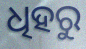
ଧିହରୁ